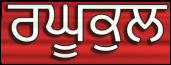
ਰਘੂਕੁਲ